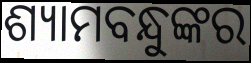
ଶ୍ୟାମବନ୍ଧୁଙ୍କର